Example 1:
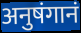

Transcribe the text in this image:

अनुषंगानं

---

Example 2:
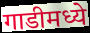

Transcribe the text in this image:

गाडीमध्ये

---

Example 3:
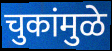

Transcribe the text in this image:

चुकांमुळे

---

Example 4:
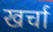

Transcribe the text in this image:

खर्चा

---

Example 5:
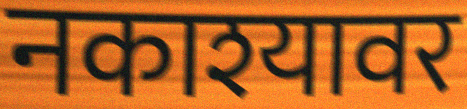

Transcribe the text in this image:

नकाश्यावर